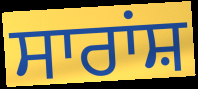
ਸਾਰਾਂਸ਼